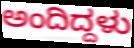
ಅಂದಿದ್ದಳು